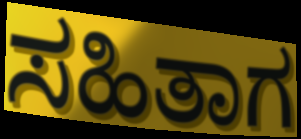
ಸಹಿತಾಗ